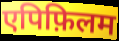
एपिफ़िलम